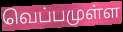
வெப்பமுள்ள